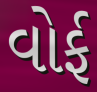
વોર્ફ